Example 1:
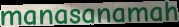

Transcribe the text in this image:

manasanamah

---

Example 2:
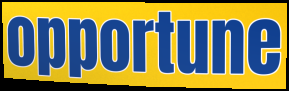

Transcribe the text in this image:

opportune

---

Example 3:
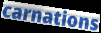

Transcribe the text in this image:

carnations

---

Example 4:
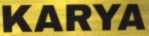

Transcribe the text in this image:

KARYA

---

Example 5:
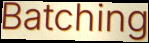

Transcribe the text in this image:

Batching